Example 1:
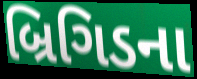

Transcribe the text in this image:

બ્રિગિડના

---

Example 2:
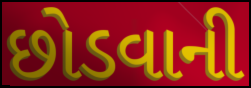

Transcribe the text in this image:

છોડવાની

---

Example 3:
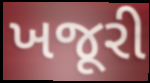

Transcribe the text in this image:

ખજૂરી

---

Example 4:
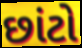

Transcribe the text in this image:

છાંટો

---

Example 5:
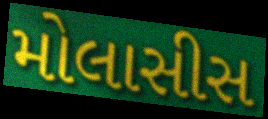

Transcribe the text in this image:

મોલાસીસ